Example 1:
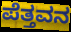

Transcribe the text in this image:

ಪೆತ್ತವನ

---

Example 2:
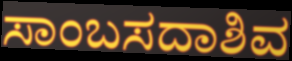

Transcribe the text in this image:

ಸಾಂಬಸದಾಶಿವ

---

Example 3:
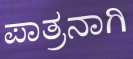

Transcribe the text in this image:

ಪಾತ್ರನಾಗಿ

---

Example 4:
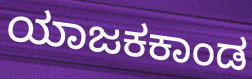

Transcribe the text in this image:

ಯಾಜಕಕಾಂಡ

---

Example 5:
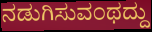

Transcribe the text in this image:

ನಡುಗಿಸುವಂಥದ್ದು